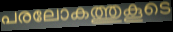
പരലോകത്തുകൂടെ